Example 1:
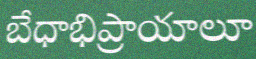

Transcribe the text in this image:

బేధాభిప్రాయాలూ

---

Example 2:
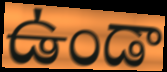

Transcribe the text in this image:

ఉండా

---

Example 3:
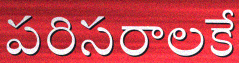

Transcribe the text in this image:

పరిసరాలకే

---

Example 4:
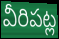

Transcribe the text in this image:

వీరిపట్ల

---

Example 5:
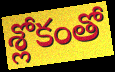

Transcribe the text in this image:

శ్లోకంతో